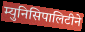
म्युनिसिपालिटीने